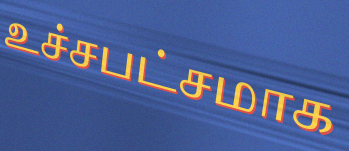
உச்சபட்சமாக